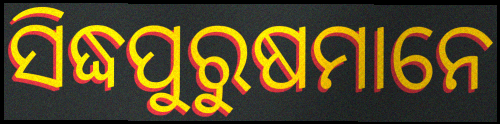
ସିଦ୍ଧପୁରୁଷମାନେ